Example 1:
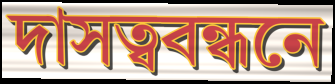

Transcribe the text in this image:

দাসত্ববন্ধনে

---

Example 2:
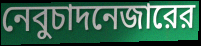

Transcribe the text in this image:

নেবুচাদনেজারের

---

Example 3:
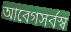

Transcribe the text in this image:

আবেগসর্বস্ব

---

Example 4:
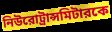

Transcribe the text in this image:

নিউরোট্রান্সমিটারকে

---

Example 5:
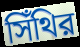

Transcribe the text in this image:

সিঁথির